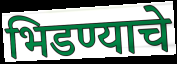
भिडण्याचे